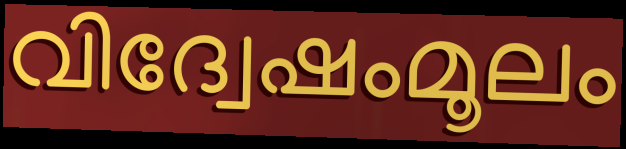
വിദ്വേഷംമൂലം